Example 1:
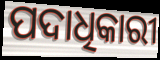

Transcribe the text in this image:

ପଦାଧିକାରୀ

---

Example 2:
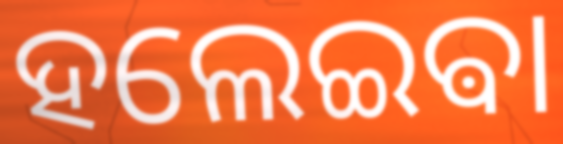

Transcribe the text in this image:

ହଲେଇଵା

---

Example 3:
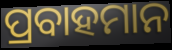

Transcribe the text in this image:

ପ୍ରବାହମାନ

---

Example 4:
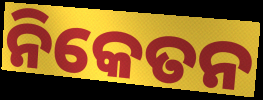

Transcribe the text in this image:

ନିକେତନ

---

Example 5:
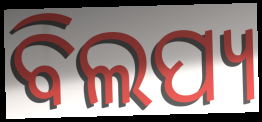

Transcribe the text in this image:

ବିଲପ୍ୟ